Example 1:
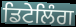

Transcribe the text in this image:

ਡਿਟੇਲਿੰਗ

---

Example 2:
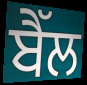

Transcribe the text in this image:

ਬੈੱਲ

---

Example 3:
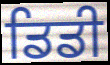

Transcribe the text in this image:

ਡਿਡੀ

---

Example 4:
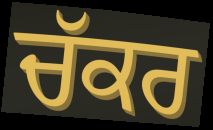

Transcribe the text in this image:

ਚੱਕਰ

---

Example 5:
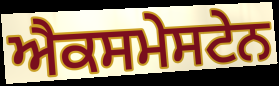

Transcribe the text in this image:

ਐਕਸਮੇਸਟੇਨ